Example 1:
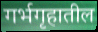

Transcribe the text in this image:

गर्भगृहातील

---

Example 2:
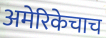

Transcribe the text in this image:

अमेरिकेचाच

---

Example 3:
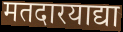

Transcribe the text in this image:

मतदारयाद्या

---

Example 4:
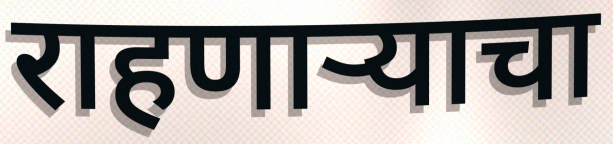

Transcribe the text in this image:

राहणाऱ्याचा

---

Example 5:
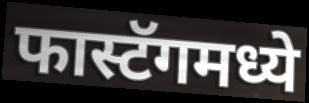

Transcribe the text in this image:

फास्टॅगमध्ये